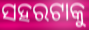
ସହରଟାକୁ